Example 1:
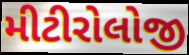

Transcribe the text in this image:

મીટીરોલોજી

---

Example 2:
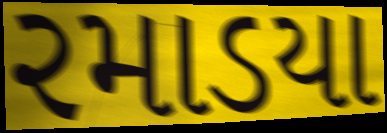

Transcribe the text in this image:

રમાડયા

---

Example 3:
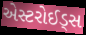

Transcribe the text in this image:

એસ્ટરોઈડ્સ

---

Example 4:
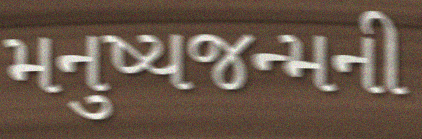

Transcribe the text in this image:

મનુષ્યજન્મની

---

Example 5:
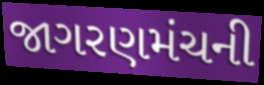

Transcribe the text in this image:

જાગરણમંચની